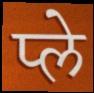
प्ले